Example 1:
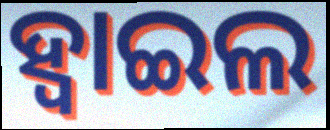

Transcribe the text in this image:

ହ୍ବାଇଲ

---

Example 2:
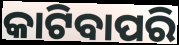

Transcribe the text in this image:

କାଟିବାପରି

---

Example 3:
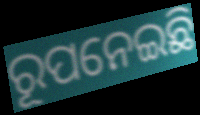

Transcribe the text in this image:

ରୂପନେଇଛି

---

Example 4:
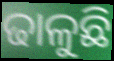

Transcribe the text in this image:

ଢାଳୁଛି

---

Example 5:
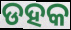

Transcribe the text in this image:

ଡହକ